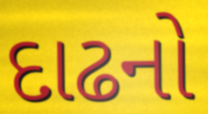
દાઢનો